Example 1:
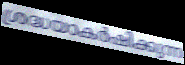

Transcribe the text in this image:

ശ്രദ്ധയാകർഷിക്കുന്ന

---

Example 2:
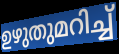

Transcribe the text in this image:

ഉഴുതുമറിച്ച്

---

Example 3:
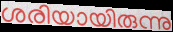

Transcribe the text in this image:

ശരിയായിരുന്നു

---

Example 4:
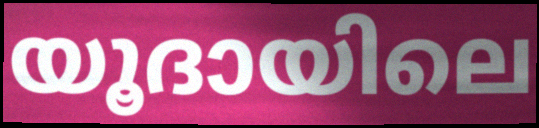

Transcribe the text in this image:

യൂദായിലെ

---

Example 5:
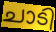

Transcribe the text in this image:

ചാടി